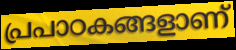
പ്രപാഠകങ്ങളാണ്